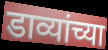
डाव्यांच्या